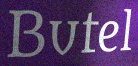
Butel